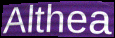
Althea